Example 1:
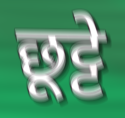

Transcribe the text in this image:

छूट्टे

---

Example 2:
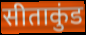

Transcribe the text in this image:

सीताकुंड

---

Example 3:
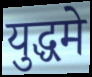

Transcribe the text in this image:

युद्धमे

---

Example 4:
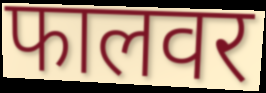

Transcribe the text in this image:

फालवर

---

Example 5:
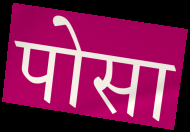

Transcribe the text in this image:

पोसा